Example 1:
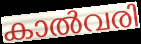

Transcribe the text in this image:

കാൽവരി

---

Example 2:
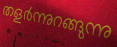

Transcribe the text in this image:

തളർന്നുറങ്ങുന്നു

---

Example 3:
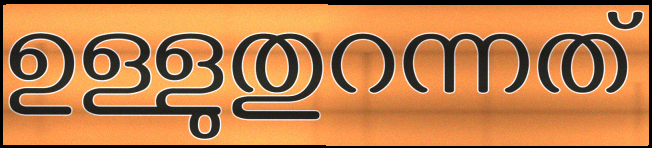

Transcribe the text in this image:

ഉള്ളുതുറന്നത്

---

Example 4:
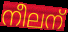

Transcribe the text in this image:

നീലന്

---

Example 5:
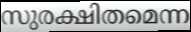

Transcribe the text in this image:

സുരക്ഷിതമെന്ന